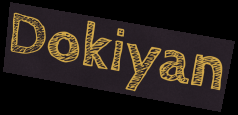
Dokiyan